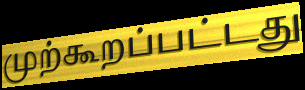
முற்கூறப்பட்டது